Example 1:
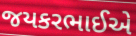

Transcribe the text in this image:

જયકરભાઈએ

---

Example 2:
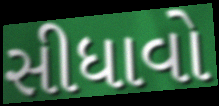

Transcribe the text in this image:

સીધાવો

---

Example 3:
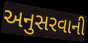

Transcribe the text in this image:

અનુસરવાની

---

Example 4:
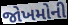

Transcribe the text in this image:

જોખમોની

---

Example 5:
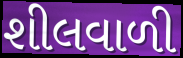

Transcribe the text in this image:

શીલવાળી